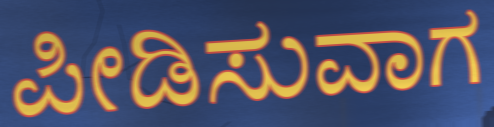
ಪೀಡಿಸುವಾಗ